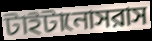
টাইটানোসরাস